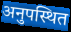
अनुपस्थित